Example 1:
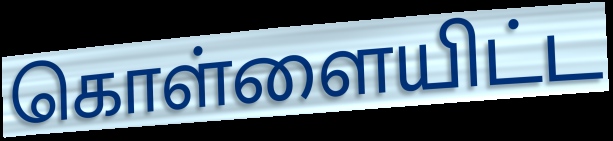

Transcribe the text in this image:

கொள்ளையிட்ட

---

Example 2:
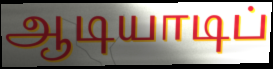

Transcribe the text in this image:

ஆடியாடிப்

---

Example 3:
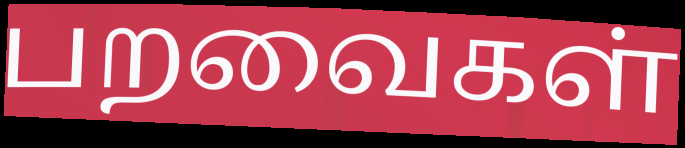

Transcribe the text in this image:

பறவைகள்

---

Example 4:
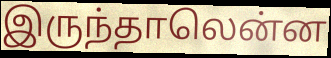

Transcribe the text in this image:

இருந்தாலென்ன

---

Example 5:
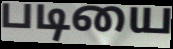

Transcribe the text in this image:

படியை